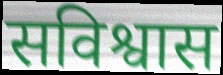
सविश्वास